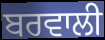
ਬਰਵਾਲੀ